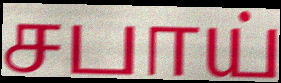
சபாய்